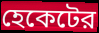
হেকেটের